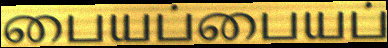
பையப்பையப்